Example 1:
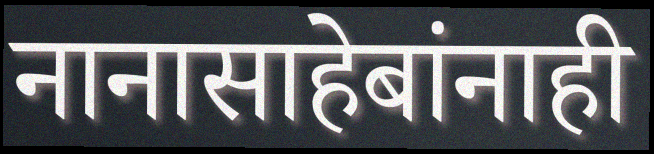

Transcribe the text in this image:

नानासाहेबांनाही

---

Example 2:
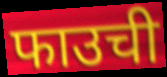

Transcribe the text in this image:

फाउची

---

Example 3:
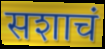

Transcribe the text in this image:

सशाचं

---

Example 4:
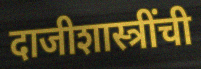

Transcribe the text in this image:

दाजीशास्त्रींची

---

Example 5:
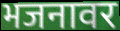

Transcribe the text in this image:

भजनावर